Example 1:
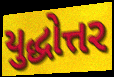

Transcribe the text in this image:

યુદ્ધોત્તર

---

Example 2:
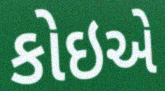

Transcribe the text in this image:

કોઇએ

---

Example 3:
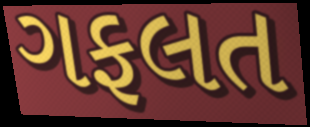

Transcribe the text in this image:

ગફલત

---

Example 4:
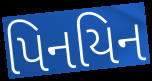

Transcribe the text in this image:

પિનયિન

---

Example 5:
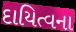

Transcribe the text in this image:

દાયિત્વના